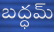
బద్ధమ్